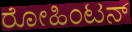
ರೋಹಿಂಟನ್